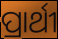
ପ୍ରାର୍ଥୀ